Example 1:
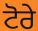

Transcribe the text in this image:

ਟੋਰੇ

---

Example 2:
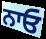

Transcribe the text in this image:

ਨਾਓ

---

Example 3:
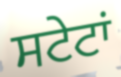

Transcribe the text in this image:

ਸਟੇਟਾਂ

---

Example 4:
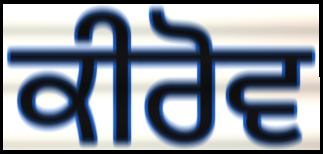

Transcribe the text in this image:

ਕੀਰੋਵ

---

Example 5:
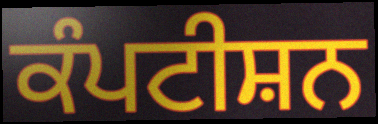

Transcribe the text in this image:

ਕੰਪਟੀਸ਼ਨ